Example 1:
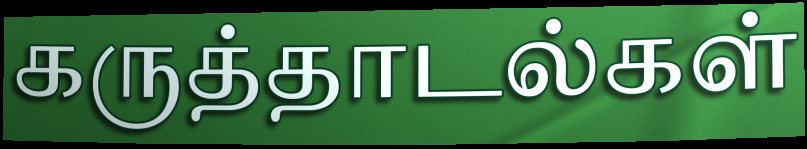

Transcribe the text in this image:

கருத்தாடல்கள்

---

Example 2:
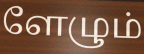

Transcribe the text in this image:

ளேழும்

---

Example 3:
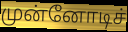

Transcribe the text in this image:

முன்னோடிச்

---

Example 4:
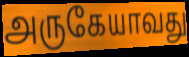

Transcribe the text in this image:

அருகேயாவது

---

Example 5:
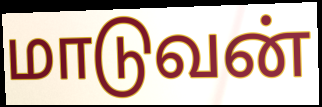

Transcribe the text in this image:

மாடுவன்